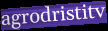
agrodristitv